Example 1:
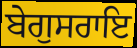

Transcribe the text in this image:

ਬੇਗੁਸਰਾਇ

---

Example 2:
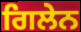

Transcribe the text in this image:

ਗਿਲੇਨ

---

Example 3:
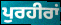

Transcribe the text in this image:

ਪੁਰਹੀਰਾਂ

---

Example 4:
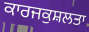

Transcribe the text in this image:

ਕਾਰਜਕੁਸ਼ਲਤਾ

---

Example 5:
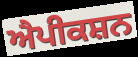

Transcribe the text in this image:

ਐਪੀਕਸ਼ਨ